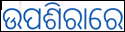
ଉପଶିରାରେ